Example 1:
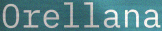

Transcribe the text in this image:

Orellana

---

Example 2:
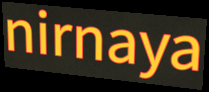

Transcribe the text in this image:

nirnaya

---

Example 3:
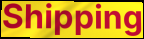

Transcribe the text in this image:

Shipping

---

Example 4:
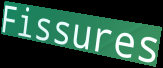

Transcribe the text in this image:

Fissures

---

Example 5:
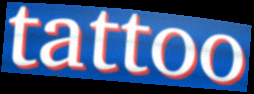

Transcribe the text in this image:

tattoo